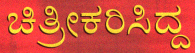
ಚಿತ್ರೀಕರಿಸಿದ್ದ